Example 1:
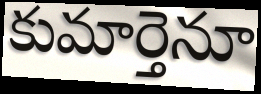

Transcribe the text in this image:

కుమార్తెనూ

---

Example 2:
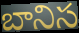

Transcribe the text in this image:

బానిస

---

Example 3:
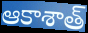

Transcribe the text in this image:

ఆకాశాత్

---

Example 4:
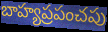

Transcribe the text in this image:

బాహ్యప్రపంచపు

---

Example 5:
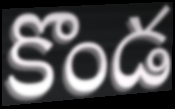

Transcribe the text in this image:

కొండ